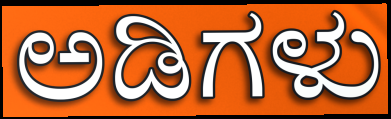
ಅಡಿಗಳು